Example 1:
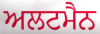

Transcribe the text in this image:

ਅਲਟਮੈਨ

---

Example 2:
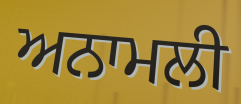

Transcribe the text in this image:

ਅਨਾਮਲੀ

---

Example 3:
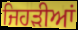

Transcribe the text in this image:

ਜਿਹੜੀਆਂ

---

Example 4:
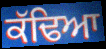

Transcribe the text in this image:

ਕੱਢਿਆ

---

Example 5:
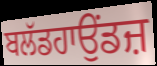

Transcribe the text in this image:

ਬਲੱਡਹਾਉਂਡਜ਼